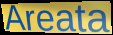
Areata